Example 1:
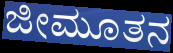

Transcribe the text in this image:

ಜೀಮೂತನ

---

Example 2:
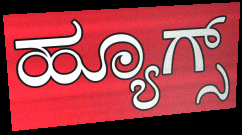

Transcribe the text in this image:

ಹ್ಯೂಗ್ಸ್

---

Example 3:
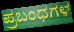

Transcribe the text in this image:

ಪ್ರಬಂಧಗಳ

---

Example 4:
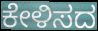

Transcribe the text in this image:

ಕೇಳಿಸದ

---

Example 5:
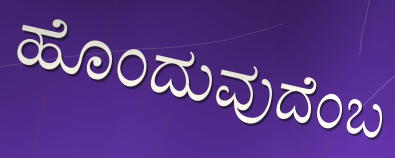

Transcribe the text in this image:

ಹೊಂದುವುದೆಂಬ